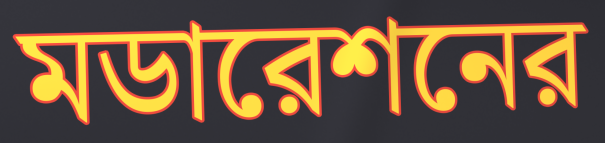
মডারেশনের